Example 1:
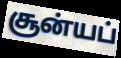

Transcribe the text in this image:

சூன்யப்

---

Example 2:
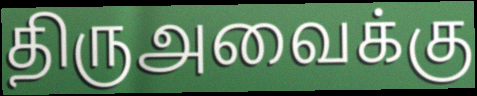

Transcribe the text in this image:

திருஅவைக்கு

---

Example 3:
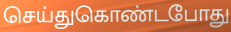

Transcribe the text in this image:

செய்துகொண்டபோது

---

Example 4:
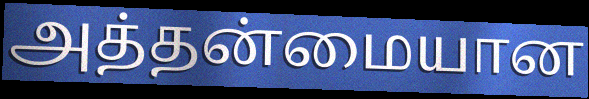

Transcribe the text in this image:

அத்தன்மையான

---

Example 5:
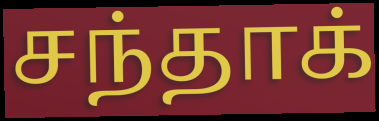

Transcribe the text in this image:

சந்தாக்